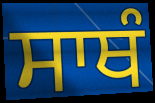
ਸਾਥੰ